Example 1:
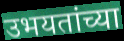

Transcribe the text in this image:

उभयतांच्या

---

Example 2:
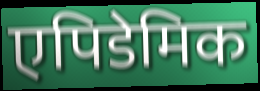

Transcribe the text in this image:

एपिडेमिक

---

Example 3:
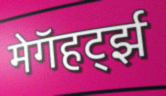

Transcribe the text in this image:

मेगॅहर्ट्झ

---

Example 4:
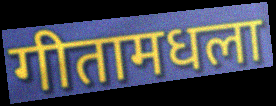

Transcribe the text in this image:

गीतामधला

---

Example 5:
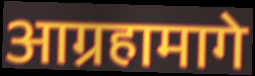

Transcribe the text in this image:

आग्रहामागे